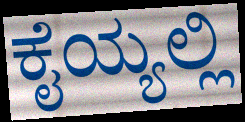
ಕೈಯ್ಯಲ್ಲಿ